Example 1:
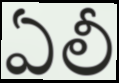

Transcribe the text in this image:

ఏలీ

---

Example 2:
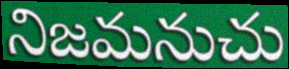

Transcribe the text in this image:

నిజమనుచు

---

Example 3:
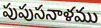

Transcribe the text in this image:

పుపుసనాళము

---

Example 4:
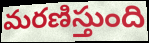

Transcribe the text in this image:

మరణిస్తుంది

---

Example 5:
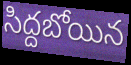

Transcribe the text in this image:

సిద్దబోయిన